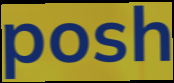
posh